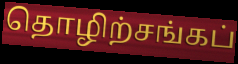
தொழிற்சங்கப்